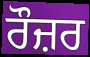
ਰੌਜ਼ਰ